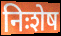
निःशेष